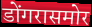
डोंगरासमोर